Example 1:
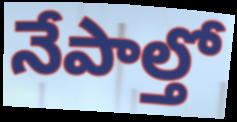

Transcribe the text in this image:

నేపాల్తో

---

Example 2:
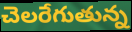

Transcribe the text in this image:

చెలరేగుతున్న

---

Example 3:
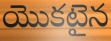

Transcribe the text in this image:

యొకటైన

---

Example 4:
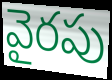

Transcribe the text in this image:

వైరపు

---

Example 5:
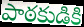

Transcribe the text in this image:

పాఠకుడికి